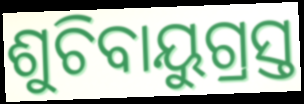
ଶୁଚିବାୟୁଗ୍ରସ୍ତ